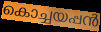
കൊച്ചയപ്പൻ